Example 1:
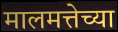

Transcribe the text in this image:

मालमत्तेच्या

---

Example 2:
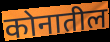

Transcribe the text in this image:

कोनातील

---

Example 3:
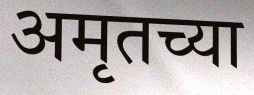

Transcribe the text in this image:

अमृतच्या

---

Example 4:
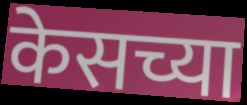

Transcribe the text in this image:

केसच्या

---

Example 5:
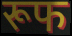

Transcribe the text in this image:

रूफ